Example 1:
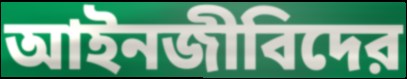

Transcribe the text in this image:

আইনজীবিদের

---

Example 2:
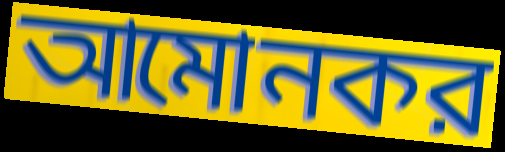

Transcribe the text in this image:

আমোনকর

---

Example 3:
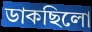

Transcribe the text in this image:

ডাকছিলো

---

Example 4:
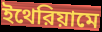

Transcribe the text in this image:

ইথেরিয়ামে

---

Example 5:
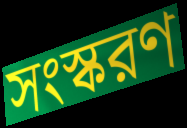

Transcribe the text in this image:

সংস্করণ